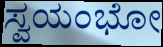
ಸ್ವಯಂಭೋ